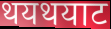
थयथयाट